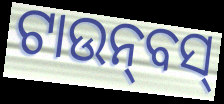
ଟାଉନ୍‍ବସ୍